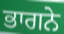
ਭਾਗਨੇ